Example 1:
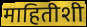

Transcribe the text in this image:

माहितीशी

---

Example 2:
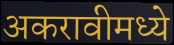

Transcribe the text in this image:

अकरावीमध्ये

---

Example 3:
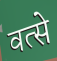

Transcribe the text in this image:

वत्से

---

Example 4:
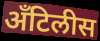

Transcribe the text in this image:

अँटिलीस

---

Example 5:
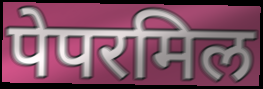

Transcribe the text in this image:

पेपरमिल